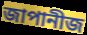
জাপানীজ